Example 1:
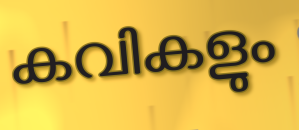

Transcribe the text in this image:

കവികളും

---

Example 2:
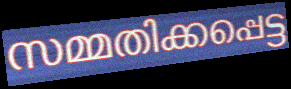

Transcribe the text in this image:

സമ്മതിക്കപ്പെട്ട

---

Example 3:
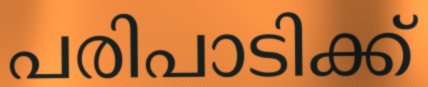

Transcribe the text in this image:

പരിപാടിക്ക്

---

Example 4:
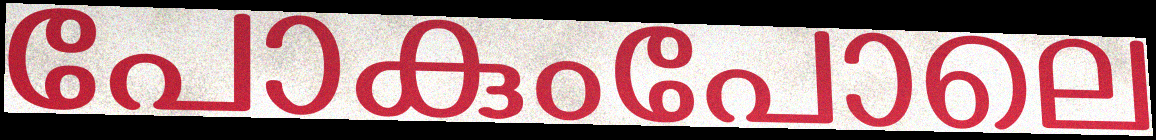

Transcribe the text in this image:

പോകുംപോലെ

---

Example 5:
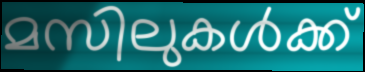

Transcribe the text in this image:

മസിലുകൾക്ക്